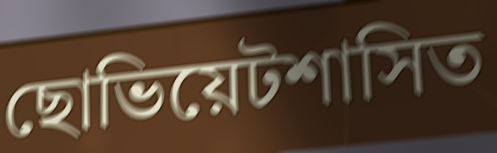
ছোভিয়েটশাসিত